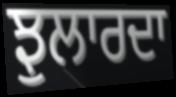
ਝੁਲਾਰਦਾ